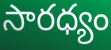
సారధ్యం